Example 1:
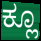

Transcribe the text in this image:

ಕ್ಲೂ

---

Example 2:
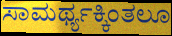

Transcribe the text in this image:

ಸಾಮರ್ಥ್ಯಕ್ಕಿಂತಲೂ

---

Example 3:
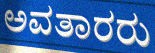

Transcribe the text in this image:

ಅವತಾರರು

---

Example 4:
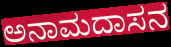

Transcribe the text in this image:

ಅನಾಮದಾಸನ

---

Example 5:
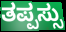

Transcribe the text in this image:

ತಪ್ಪಸ್ಸು